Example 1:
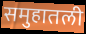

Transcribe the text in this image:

समुहातली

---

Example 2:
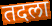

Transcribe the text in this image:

तदला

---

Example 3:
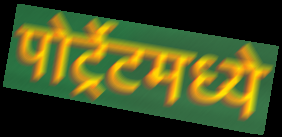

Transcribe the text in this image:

पोर्ट्रेटमध्ये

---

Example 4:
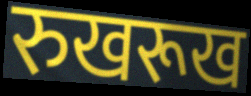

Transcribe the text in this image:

रुखरूख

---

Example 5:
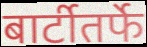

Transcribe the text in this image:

बार्टीतर्फे